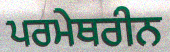
ਪਰਮੇਥਰੀਨ